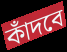
কাঁদবে